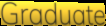
Graduate